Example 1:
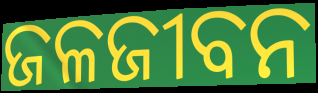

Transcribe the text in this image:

ଜଳଜୀବନ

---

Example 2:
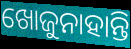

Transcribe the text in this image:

ଖୋଜୁନାହାନ୍ତି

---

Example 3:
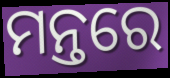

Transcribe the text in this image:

ମନ୍ତରେ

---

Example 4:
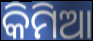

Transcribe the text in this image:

କିମିଆ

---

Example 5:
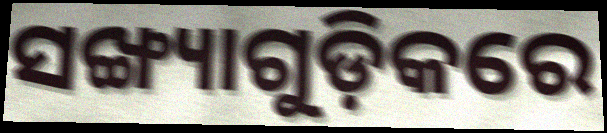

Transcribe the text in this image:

ସଙ୍ଖ୍ୟାଗୁଡ଼ିକରେ